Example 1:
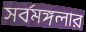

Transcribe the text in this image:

সর্বমঙ্গলার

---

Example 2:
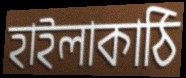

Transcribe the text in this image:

হাইলাকাঠি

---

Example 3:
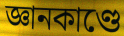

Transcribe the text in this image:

জ্ঞানকাণ্ডে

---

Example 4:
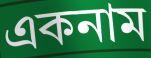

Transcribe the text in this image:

একনাম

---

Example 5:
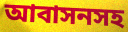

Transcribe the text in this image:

আবাসনসহ